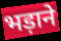
भड़ाने